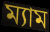
ম্যাম